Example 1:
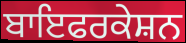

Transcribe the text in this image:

ਬਾਇਫਰਕੇਸ਼ਨ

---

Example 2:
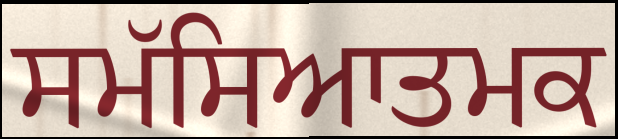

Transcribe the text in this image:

ਸਮੱਸਿਆਤਮਕ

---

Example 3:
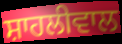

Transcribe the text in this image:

ਸ਼ਾਹਲੀਵਾਲ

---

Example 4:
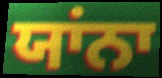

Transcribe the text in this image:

ਯਾਂਨਾ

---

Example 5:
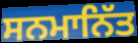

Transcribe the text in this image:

ਸਨਮਾਨਿੱਤ